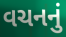
વચનનું